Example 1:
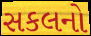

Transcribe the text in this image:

સકલનો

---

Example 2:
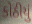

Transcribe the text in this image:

કોઠીયું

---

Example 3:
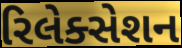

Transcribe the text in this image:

રિલેક્સેશન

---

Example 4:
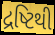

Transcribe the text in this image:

દ્રષ્ટિથી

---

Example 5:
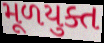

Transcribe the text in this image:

મૂળયુક્ત